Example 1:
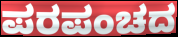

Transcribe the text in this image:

ಪರಪಂಚದ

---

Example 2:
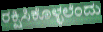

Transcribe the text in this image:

ರಕ್ಷಿಸಿಕೊಳ್ಳಲೆಂದು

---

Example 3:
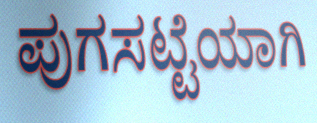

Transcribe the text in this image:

ಪುಗಸಟ್ಟೆಯಾಗಿ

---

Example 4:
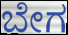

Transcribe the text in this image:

ಬೇಗ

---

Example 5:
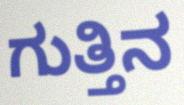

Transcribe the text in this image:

ಗುತ್ತಿನ